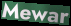
Mewar